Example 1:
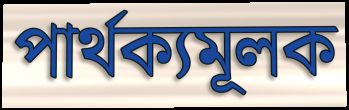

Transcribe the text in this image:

পাৰ্থক্যমূলক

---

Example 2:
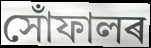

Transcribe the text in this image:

সোঁফালৰ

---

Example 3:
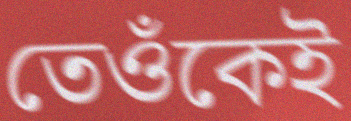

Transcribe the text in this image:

তেওঁকেই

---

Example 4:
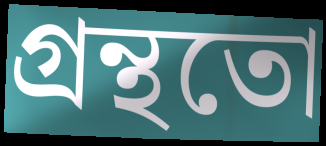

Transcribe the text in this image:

গ্ৰন্থতো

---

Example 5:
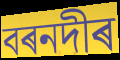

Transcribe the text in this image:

বৰনদীৰ